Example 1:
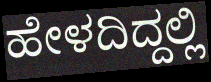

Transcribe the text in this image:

ಹೇಳದಿದ್ದಲ್ಲಿ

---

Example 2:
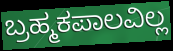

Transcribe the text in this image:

ಬ್ರಹ್ಮಕಪಾಲವಿಲ್ಲ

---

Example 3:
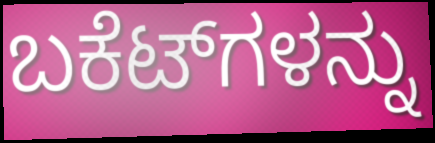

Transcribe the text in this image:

ಬಕೆಟ್‌ಗಳನ್ನು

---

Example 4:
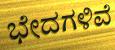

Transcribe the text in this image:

ಭೇದಗಳಿವೆ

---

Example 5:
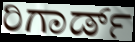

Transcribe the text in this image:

ರಿಗಾರ್ಡ್